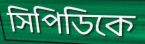
সিপিডিকে